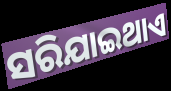
ସରିଯାଇଥାଏ